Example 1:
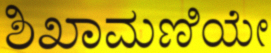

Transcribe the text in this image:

ಶಿಖಾಮಣಿಯೇ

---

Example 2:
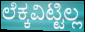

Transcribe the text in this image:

ಲೆಕ್ಕವಿಟ್ಟಿಲ್ಲ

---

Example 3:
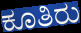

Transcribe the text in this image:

ಕೂತಿರು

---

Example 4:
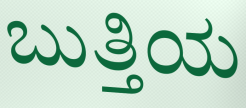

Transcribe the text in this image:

ಬುತ್ತಿಯ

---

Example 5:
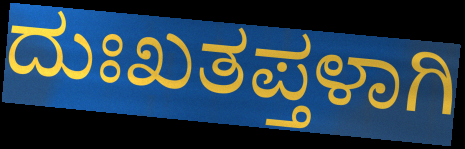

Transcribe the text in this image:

ದುಃಖತಪ್ತಳಾಗಿ